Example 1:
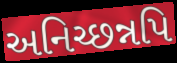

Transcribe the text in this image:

અનિચ્છન્નપિ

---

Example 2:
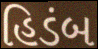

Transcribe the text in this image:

હિડંબ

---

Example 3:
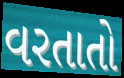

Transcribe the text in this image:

વરતાતો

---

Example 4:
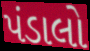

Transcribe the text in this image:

પંડાલો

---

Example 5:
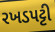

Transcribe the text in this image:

રખડપટ્ટી